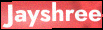
Jayshree